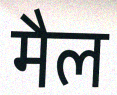
मैल